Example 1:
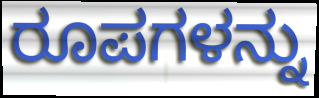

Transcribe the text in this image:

ರೂಪಗಳನ್ನು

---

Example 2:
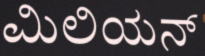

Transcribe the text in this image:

ಮಿಲಿಯನ್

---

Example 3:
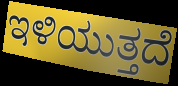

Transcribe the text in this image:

ಇಳಿಯುತ್ತದೆ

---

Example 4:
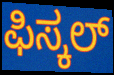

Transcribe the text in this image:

ಫಿಸ್ಕಲ್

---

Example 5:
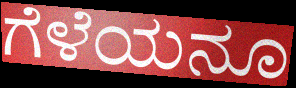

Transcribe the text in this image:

ಗೆಳೆಯನೂ